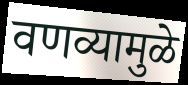
वणव्यामुळे